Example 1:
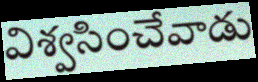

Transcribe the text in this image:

విశ్వసించేవాడు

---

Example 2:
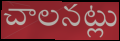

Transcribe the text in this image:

చాలనట్లు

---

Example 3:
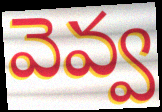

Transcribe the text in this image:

వెవ్వ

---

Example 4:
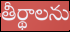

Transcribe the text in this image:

తీర్థాలను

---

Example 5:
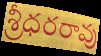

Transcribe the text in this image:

శ్రీధరరావు